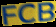
FCB